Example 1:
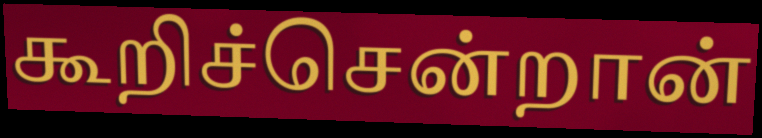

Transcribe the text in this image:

கூறிச்சென்றான்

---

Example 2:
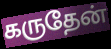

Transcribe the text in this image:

கருதேன்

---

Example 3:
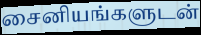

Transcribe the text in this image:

சைனியங்களுடன்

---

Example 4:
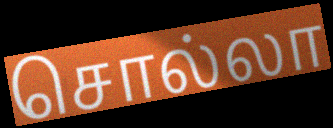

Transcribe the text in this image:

சொல்லா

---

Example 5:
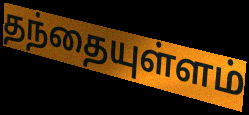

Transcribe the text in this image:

தந்தையுள்ளம்